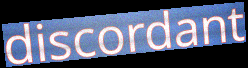
discordant